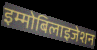
इम्मोबिलाइजेशन